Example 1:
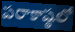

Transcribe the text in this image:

పరాకాష్ఠలో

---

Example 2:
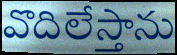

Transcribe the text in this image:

వొదిలేస్తాను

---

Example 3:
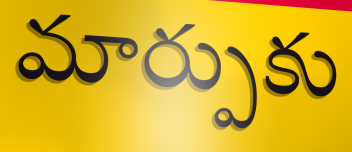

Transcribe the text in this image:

మార్పుకు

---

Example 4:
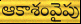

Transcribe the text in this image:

ఆకాశంవైపు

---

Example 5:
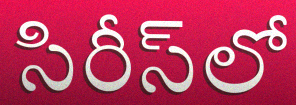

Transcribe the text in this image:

సిరీస్‌లో